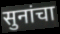
सुनांचा